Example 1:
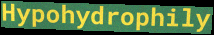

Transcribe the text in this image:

Hypohydrophily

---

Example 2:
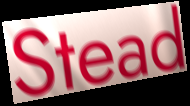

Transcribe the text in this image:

Stead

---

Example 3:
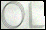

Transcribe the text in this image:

OL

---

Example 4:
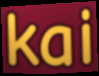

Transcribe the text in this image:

kai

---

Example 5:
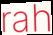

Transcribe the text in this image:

rah